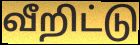
வீறிட்டு